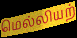
மெல்லியற்